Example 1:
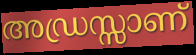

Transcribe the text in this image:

അഡ്രസ്സാണ്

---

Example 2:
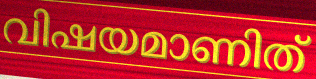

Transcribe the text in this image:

വിഷയമാണിത്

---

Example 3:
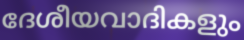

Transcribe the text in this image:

ദേശീയവാദികളും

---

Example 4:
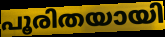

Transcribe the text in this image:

പൂരിതയായി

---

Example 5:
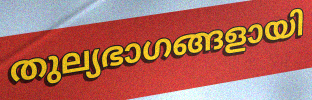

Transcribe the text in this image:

തുല്യഭാഗങ്ങളായി